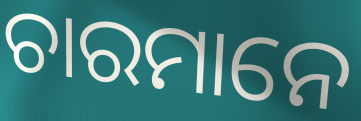
ଚାରମାନେ